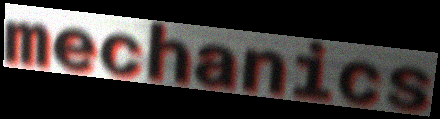
mechanics